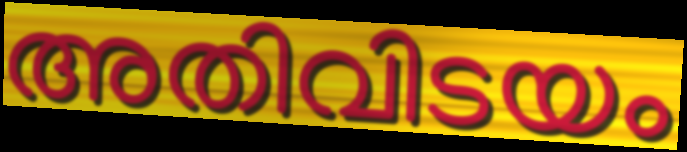
അതിവിടയം